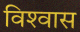
विश्‍वास